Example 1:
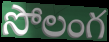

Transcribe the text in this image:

సోలంగ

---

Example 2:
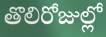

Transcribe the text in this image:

తొలిరోజుల్లో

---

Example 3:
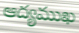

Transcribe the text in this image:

ఆద్యముఖ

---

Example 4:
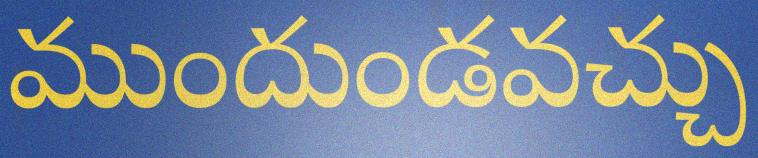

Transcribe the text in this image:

ముందుండవచ్చు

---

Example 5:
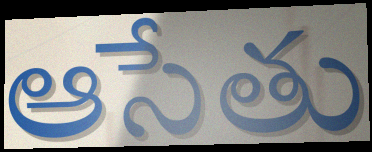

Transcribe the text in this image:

ఆసేతు